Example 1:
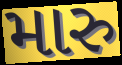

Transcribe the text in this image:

મારુ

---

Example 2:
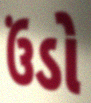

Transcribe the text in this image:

ઉંડો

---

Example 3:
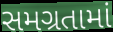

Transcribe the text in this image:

સમગ્રતામાં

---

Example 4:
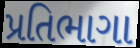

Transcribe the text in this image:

પ્રતિભાગા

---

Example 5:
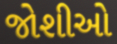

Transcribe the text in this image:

જોશીઓ